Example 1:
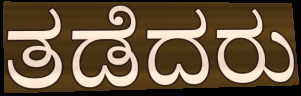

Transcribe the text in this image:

ತಡೆದರು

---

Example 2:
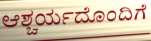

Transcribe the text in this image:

ಆಶ್ಚರ್ಯದೊಂದಿಗೆ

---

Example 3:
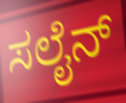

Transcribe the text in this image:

ಸಲೈನ್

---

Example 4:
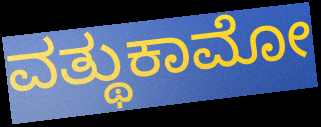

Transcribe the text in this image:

ವತ್ಥುಕಾಮೋ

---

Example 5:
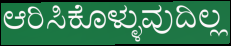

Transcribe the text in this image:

ಆರಿಸಿಕೊಳ್ಳುವುದಿಲ್ಲ